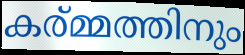
കര്മ്മത്തിനും